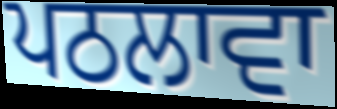
ਪਠਲਾਵਾ